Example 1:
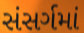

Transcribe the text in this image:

સંસર્ગમાં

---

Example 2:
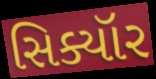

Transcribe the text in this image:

સિક્યૉર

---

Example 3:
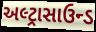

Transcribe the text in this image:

અલ્ટ્રાસાઉન્ડ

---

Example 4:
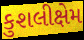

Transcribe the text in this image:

કુશલીક્ષેમ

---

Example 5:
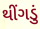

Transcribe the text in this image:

થીંગડું